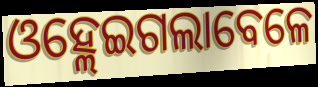
ଓହ୍ଲେଇଗଲାବେଳେ